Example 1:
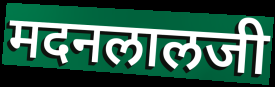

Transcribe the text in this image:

मदनलालजी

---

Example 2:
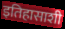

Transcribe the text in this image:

इतिहासाशी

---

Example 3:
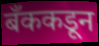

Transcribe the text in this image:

बँककडून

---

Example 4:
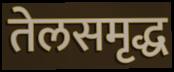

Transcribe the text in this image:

तेलसमृद्ध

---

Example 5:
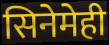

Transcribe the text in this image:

सिनेमेही